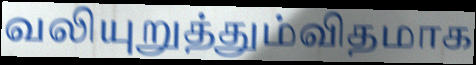
வலியுறுத்தும்விதமாக